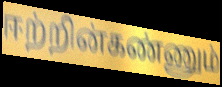
ஈற்றின்கண்ணும்